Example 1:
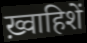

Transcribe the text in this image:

ख़्वाहिशें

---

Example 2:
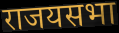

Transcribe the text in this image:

राजयसभा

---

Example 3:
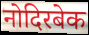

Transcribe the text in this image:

नोदिरबेक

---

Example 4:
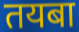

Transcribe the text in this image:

तयबा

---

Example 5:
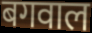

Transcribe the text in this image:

बगवाल